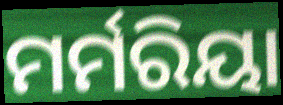
ମର୍ମରିୟା